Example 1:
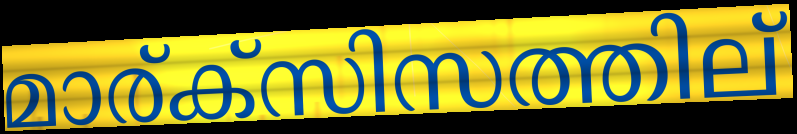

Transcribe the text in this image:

മാര്ക്സിസത്തില്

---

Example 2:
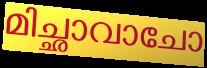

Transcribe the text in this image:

മിച്ഛാവാചോ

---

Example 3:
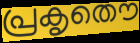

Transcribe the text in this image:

പ്രകൃതൌ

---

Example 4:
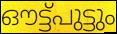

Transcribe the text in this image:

ഔട്ട്പുട്ടും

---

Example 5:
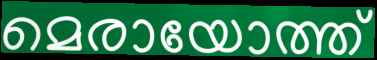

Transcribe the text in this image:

മെരായോത്ത്